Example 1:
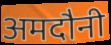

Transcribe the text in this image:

अमदौनी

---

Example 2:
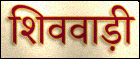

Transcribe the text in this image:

शिववाड़ी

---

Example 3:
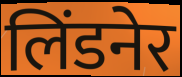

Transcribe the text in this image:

लिंडनेर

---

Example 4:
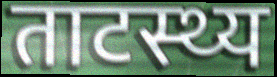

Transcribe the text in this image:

ताटस्थ्य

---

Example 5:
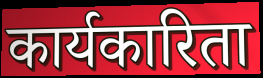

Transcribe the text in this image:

कार्यकारिता